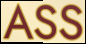
ASS